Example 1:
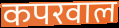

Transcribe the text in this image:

कपरवाल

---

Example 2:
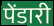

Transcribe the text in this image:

पेंडारी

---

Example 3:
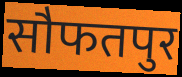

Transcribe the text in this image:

सौफतपुर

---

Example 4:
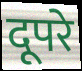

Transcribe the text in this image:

दूपरे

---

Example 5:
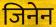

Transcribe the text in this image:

जिनेन